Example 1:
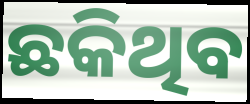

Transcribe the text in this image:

ଛକିଥିବ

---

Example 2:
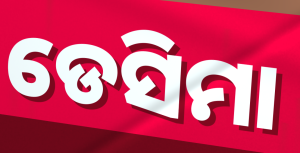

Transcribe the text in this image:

ଡେସିମା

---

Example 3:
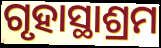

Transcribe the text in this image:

ଗୃହାସ୍ଥାଶ୍ରମ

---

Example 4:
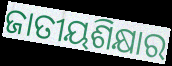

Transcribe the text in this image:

ଜାତୀୟଶିକ୍ଷାର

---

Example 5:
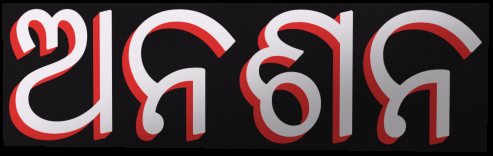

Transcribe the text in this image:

ଅନଶନ